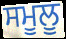
ਸਮੂਲੂ